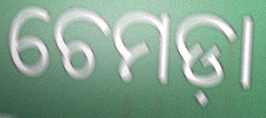
ଚେମଡ଼ା